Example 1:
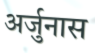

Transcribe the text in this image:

अर्जुनास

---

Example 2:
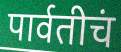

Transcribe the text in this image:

पार्वतीचं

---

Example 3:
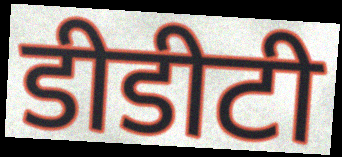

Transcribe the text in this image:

डीडीटी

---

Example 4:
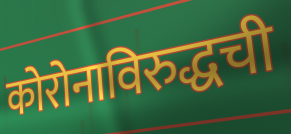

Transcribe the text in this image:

कोरोनाविरुद्धची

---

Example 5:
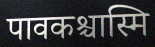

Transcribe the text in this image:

पावकश्चास्मि